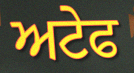
ਅਟੇਫ